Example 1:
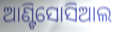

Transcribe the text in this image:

ଆଣ୍ଟିସୋସିଆଲ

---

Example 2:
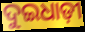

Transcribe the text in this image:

ଦୁଇଧାଡ଼ୀ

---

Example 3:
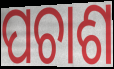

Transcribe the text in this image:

ପଚାଶ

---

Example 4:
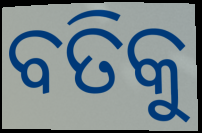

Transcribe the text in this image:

ବତିକୁ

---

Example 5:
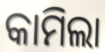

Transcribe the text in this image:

କାମିଲା